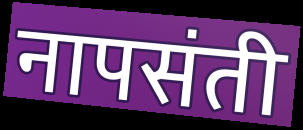
नापसंती